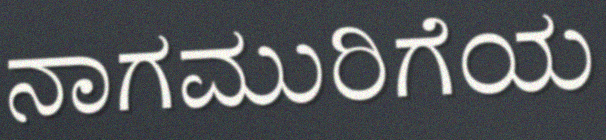
ನಾಗಮುರಿಗೆಯ